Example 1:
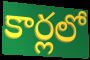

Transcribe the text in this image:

కార్లలో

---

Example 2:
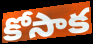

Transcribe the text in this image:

కోసాక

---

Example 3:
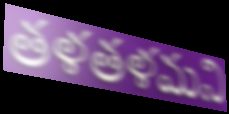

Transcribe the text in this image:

తళతళమని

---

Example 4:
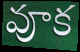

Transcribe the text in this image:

వూక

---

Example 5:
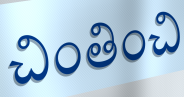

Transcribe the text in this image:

చింతించి